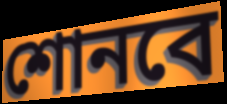
শোনবে